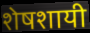
शेषशायी